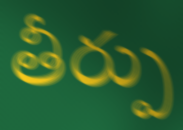
తీర్పు